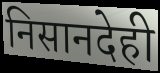
निसानदेही